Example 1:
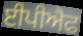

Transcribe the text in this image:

ਈਪੀਐਫ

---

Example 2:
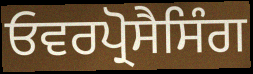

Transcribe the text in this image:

ਓਵਰਪ੍ਰੋਸੈਸਿੰਗ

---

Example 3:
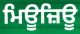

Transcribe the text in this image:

ਮਿਊਜ਼ਿਊ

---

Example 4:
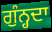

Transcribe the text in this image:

ਗੁੰਨ੍ਹਦਾ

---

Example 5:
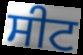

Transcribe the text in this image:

ਸੀਟ